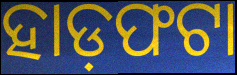
ହାଡ଼ଫଟା